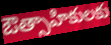
ఔత్సాహికులకు